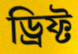
ড্রিফ্ট